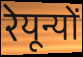
रेयून्यों